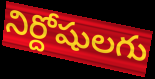
నిర్దోషులగు